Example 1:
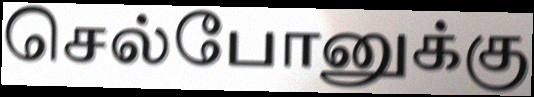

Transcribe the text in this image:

செல்போனுக்கு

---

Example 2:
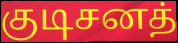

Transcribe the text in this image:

குடிசனத்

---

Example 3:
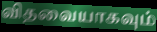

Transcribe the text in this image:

விதவையாகவும்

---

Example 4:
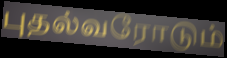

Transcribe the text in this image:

புதல்வரோடும்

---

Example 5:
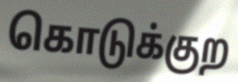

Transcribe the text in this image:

கொடுக்குற